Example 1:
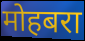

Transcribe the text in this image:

मोहबरा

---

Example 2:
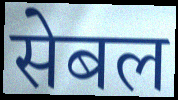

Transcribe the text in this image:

सेबल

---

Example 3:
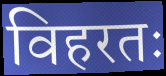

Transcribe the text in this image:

विहरतः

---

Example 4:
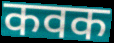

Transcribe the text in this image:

कवक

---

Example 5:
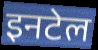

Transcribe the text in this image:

इनटेल